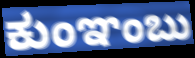
ಕುಂಞಂಬು